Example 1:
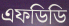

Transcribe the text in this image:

এফডিডি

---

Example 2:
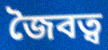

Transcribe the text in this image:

জৈবত্ব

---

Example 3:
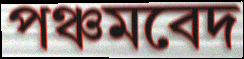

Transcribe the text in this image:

পঞ্চমবেদ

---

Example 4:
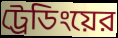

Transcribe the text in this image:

ট্রেডিংয়ের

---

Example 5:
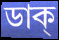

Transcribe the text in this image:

ডাক্